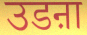
उडऩा